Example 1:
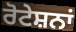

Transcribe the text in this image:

ਰੋਟੇਸ਼ਨਾਂ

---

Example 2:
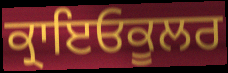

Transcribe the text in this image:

ਕ੍ਰਾਇਓਕੂਲਰ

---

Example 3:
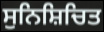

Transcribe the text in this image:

ਸੁਨਿਸ਼ਿਚਿਤ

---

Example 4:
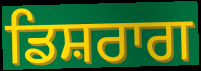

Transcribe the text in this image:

ਡਿਸ਼ਰਾਗ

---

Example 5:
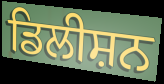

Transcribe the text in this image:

ਡਿਲੀਸ਼ਨ